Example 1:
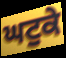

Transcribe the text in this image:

ਘਟੁਕੇ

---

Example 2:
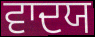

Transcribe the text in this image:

ਵਾਦਯ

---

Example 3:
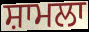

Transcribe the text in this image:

ਸ਼ਾਮਲਾ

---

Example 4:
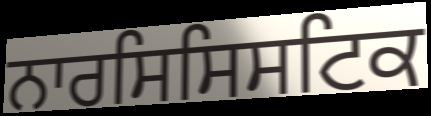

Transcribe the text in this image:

ਨਾਰਸਿਸਿਸਟਿਕ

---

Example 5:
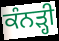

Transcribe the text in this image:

ਕੰਨੜ੍ਹੀ